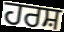
ਹਰਸ਼